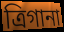
ত্রিগানা